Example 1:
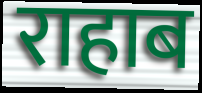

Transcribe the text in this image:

राहाब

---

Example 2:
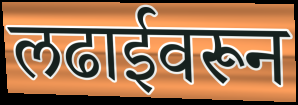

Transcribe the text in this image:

लढाईवरून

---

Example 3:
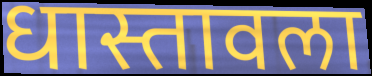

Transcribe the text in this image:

धास्तावला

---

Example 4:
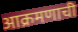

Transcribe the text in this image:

आक्रमणाची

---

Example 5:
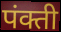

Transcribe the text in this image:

पंक्ती